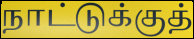
நாட்டுக்குத்